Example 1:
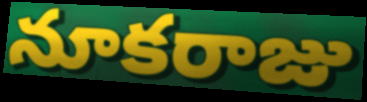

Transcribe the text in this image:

నూకరాజు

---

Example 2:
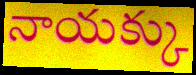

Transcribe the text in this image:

నాయక్కు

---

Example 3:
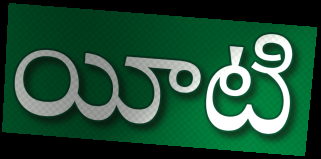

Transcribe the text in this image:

యీటి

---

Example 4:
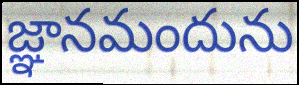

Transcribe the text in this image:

జ్ఞానమందును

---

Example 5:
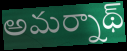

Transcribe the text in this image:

అమర్నాథ్